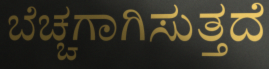
ಬೆಚ್ಚಗಾಗಿಸುತ್ತದೆ